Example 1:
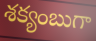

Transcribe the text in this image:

శక్యంబుగా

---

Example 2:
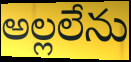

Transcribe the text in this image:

అల్లలేను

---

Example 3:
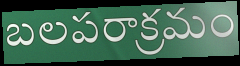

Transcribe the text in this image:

బలపరాక్రమం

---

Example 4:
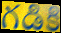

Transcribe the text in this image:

గడికి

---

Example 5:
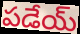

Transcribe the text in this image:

పడేయ్